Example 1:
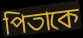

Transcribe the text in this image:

পিতাকে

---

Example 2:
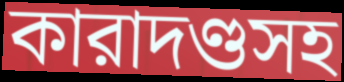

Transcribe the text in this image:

কারাদণ্ডসহ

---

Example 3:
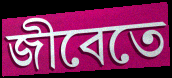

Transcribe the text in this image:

জীবেতে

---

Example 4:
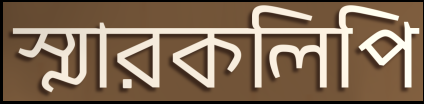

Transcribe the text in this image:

স্মারকলিপি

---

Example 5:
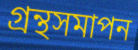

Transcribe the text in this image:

গ্রন্থসমাপন